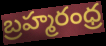
బ్రహ్మరంధ్ర